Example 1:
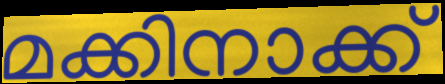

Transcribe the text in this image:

മക്കിനാക്ക്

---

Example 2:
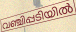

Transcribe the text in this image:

വഞ്ചിപ്പടിയിൽ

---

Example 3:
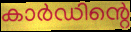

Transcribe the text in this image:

കാർഡിന്റെ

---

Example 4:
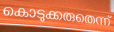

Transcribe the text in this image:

കൊടുക്കരുതെന്ന്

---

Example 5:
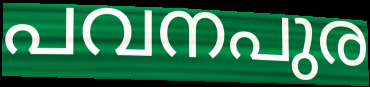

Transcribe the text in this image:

പവനപുര